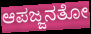
ಆಪಜ್ಜನತೋ